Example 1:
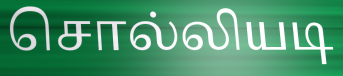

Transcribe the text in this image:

சொல்லியடி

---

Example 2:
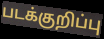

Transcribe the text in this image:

படக்குறிப்பு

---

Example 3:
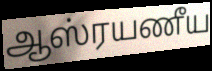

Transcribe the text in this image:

ஆஸ்ரயணீய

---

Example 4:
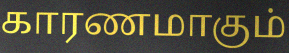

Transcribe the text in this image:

காரணமாகும்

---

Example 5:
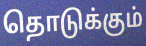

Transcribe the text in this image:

தொடுக்கும்